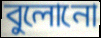
বুলোনো